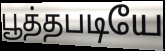
பூத்தபடியே